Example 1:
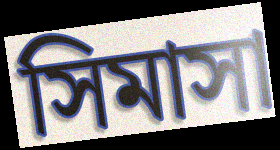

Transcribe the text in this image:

সিমাসা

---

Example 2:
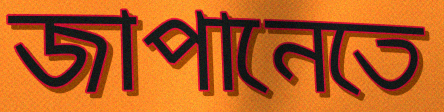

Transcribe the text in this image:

জাপানেতে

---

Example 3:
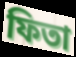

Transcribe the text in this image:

ফিতা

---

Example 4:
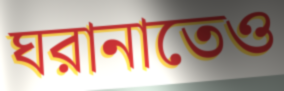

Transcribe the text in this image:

ঘরানাতেও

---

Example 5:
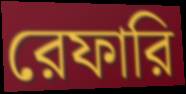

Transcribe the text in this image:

রেফারি